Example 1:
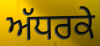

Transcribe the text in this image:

ਅੱਧਰਕੇ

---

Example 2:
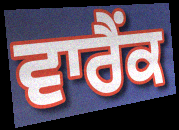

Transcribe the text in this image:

ਵਾਰੈਂਕ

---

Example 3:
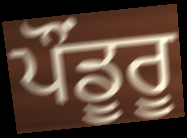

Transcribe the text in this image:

ਪੌਂਡੂਰੂ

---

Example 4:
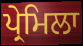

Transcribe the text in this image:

ਪ੍ਰੇਮਿਲਾ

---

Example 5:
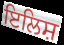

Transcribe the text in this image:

ਇਲਿਸ਼